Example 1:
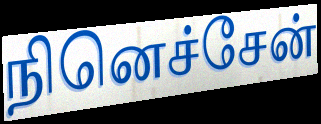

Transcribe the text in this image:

நினெச்சேன்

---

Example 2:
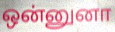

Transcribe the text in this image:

ஒன்னுனா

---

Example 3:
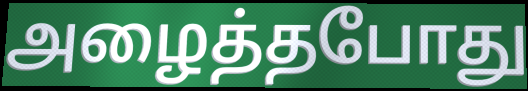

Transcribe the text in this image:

அழைத்தபோது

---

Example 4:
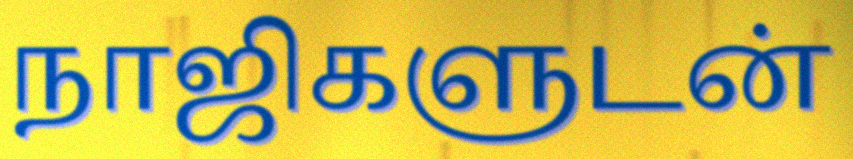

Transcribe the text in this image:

நாஜிகளுடன்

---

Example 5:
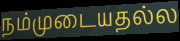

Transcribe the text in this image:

நம்முடையதல்ல